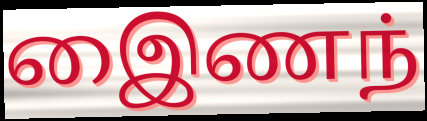
இைணந்